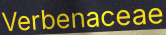
Verbenaceae